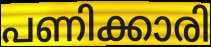
പണിക്കാരി